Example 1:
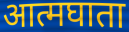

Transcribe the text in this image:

आत्मघाता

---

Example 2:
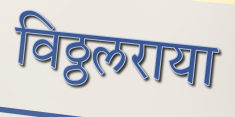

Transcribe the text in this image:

विठ्ठलराया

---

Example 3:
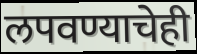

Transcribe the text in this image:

लपवण्याचेही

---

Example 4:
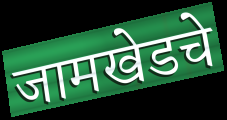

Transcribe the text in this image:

जामखेडचे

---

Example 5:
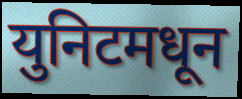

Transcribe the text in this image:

युनिटमधून